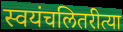
स्वयंचलितरीत्या